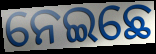
ନେଇଛେ